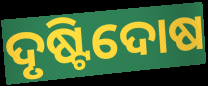
ଦୃଷ୍ଟିଦୋଷ